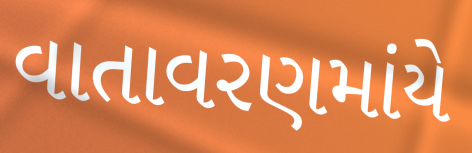
વાતાવરણમાંયે